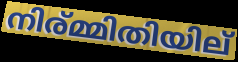
നിര്മ്മിതിയില്